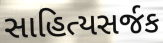
સાહિત્યસર્જક